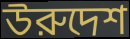
উরুদেশ